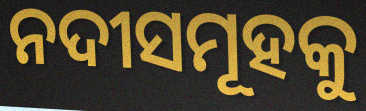
ନଦୀସମୂହକୁ